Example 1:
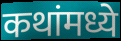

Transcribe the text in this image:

कथांमध्ये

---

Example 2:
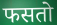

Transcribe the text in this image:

फसतो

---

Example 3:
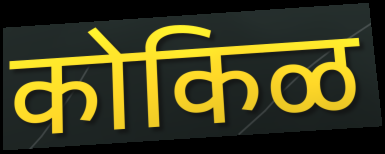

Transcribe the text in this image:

कोकिळ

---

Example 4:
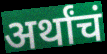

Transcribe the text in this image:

अर्थांचं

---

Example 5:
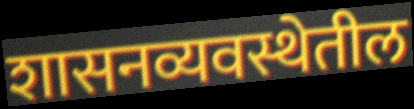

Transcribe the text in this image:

शासनव्यवस्थेतील